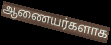
ஆணையர்களாக